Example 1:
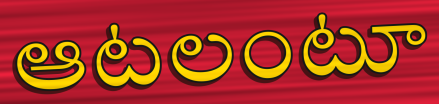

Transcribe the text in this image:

ఆటలంటూ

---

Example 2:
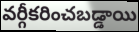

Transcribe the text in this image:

వర్గీకరించబడ్డాయి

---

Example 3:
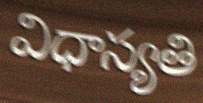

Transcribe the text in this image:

విధాస్యతి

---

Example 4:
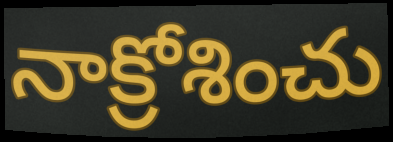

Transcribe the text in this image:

నాక్రోశించు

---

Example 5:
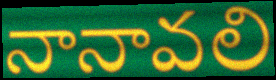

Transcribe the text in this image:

నానావలి